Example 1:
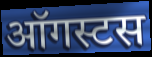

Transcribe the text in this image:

ऑगस्टस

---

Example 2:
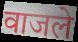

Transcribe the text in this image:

वाजले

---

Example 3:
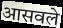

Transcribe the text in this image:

आसवले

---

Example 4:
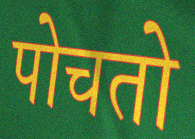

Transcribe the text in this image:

पोचतो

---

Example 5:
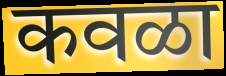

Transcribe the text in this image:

कवळा